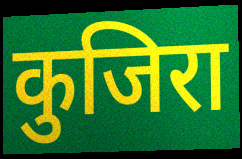
कुजिरा